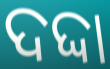
ଦଦ୍ଦା